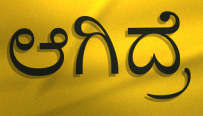
ಆಗಿದ್ರೆ